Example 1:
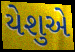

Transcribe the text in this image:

યેશુએ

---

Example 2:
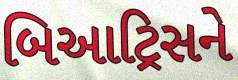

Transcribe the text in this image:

બિઆટ્રિસને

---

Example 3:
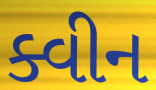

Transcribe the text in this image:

ક્વીન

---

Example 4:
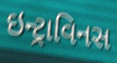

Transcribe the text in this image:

ઇન્ટ્રાવિનસ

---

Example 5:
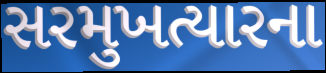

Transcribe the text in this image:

સરમુખત્યારના